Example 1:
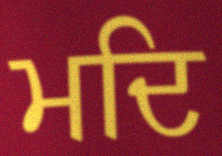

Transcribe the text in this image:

ਮਦਿ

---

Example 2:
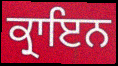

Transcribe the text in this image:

ਕ੍ਰਾਇਨ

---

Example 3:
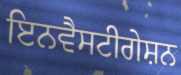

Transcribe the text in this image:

ਇਨਵੈਸਟੀਗੇਸ਼ਨ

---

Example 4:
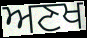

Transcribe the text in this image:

ਅਣਖ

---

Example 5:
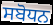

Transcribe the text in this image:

ਸਬੋਧਨ